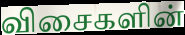
விசைகளின்